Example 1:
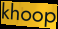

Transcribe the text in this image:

khoop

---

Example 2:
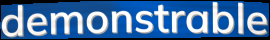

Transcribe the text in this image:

demonstrable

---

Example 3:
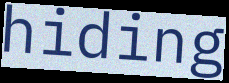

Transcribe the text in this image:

hiding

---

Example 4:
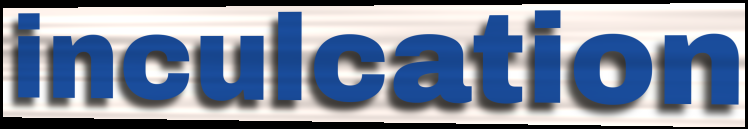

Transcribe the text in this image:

inculcation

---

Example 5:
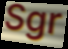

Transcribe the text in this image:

Sgr